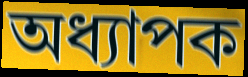
অধ্যাপক